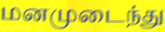
மனமுடைந்து